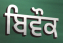
ਬਿਵੌਕ